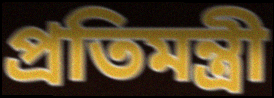
প্রতিমন্ত্রী